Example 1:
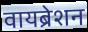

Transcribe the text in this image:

वायब्रेशन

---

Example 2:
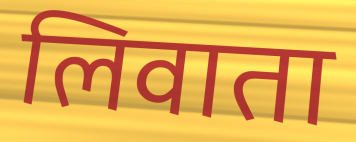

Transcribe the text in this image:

लिवाता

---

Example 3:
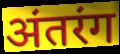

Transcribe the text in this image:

अंतरंग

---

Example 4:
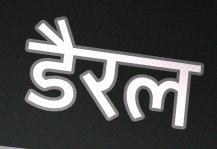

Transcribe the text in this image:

डैरल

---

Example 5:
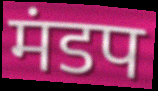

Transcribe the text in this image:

मंडप